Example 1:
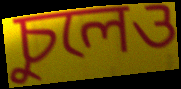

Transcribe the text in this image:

চুলেও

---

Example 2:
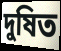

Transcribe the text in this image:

দুষিত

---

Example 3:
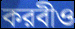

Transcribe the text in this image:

করবীও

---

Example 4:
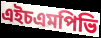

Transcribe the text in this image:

এইচএমপিভি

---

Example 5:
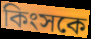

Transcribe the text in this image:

কিংসকে